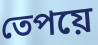
তেপয়ে